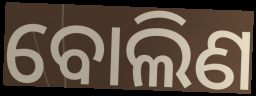
ବୋଲିଣ